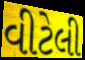
વીટેલી